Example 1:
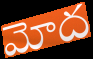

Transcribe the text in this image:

మోద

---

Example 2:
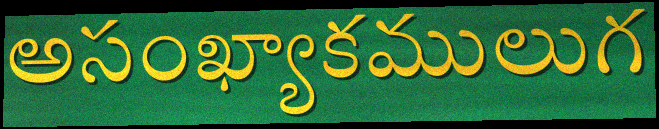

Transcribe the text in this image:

అసంఖ్యాకములుగ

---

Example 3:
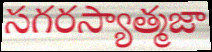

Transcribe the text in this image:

సగరస్యాత్మజా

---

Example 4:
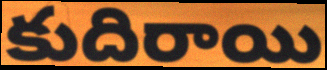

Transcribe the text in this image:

కుదిరాయి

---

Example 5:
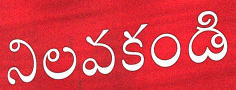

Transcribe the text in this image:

నిలవకండి